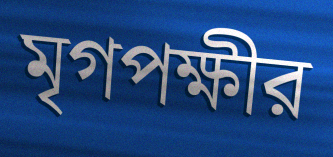
মৃগপক্ষীর